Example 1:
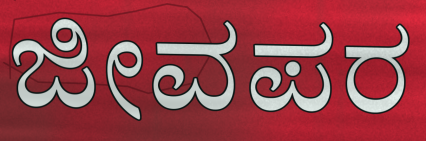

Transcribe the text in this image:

ಜೀವಪರ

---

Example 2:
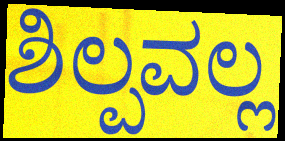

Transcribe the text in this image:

ಶಿಲ್ಪವಲ್ಲ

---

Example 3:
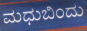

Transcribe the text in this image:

ಮಧುಬಿಂದು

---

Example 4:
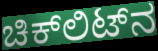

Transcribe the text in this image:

ಚಿಕ್‌ಲಿಟ್‌ನ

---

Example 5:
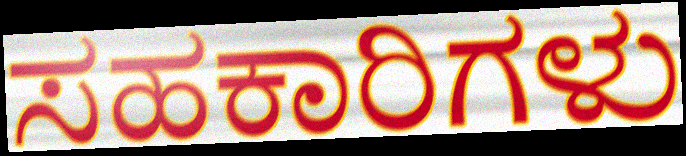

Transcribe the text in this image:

ಸಹಕಾರಿಗಳು